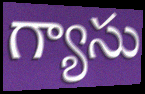
గ్యాసు